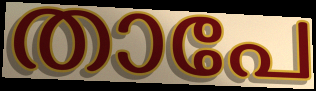
താപേ